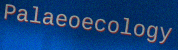
Palaeoecology